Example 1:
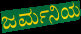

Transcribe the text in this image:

ಜರ್ಮನಿಯ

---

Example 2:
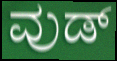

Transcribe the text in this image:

ವುಡ್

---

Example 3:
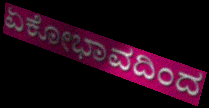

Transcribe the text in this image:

ಏಕೋಭಾವದಿಂದ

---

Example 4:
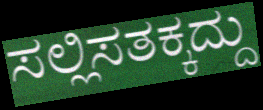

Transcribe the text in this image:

ಸಲ್ಲಿಸತಕ್ಕದ್ದು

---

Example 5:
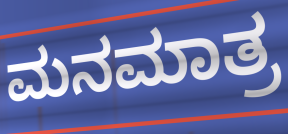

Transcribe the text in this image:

ಮನಮಾತ್ರ